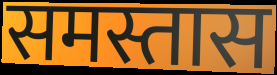
समस्तास